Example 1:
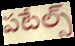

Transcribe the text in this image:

పటేల్స్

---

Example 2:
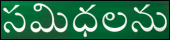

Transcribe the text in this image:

సమిధలను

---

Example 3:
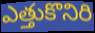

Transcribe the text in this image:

ఎత్తుకొనిరి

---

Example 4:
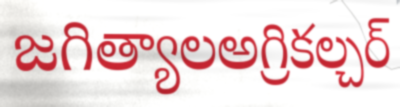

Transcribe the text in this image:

జగిత్యాలఅగ్రికల్చర్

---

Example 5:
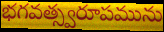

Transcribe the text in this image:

భగవత్స్వరూపమును